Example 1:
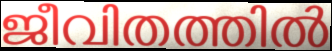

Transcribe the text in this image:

ജീവിതത്തിൽ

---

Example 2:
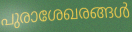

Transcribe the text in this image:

പുരാശേഖരങ്ങൾ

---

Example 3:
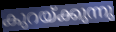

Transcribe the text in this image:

കുറയ്ക്കുന്നു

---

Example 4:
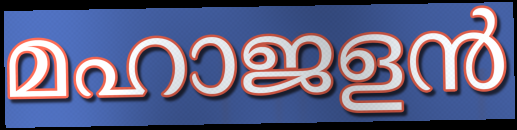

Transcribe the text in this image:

മഹാജളൻ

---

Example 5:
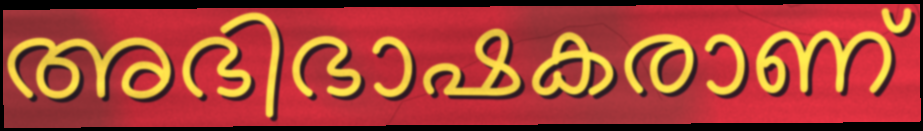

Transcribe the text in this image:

അഭിഭാഷകരാണ്